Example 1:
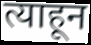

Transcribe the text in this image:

त्याहून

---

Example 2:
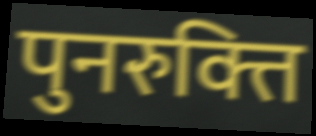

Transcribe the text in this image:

पुनरुक्ति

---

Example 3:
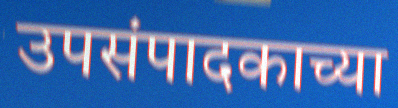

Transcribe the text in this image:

उपसंपादकाच्या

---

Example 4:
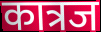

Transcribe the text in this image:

कात्रज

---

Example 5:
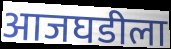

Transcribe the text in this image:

आजघडीला